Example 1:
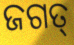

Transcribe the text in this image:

ଜଗତ୍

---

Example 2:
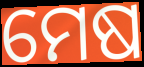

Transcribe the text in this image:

ମେଷ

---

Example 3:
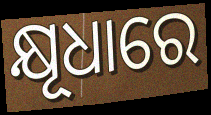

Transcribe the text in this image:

କ୍ଷୂଧାରେ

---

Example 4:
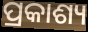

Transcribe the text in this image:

ପ୍ରକାଶ୍ୟ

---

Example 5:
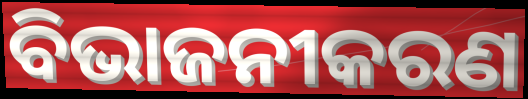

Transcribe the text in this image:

ବିଭାଜନୀକରଣ